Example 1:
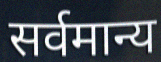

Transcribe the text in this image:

सर्वमान्य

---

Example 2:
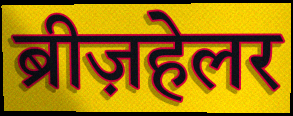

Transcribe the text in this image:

ब्रीज़हेलर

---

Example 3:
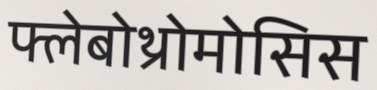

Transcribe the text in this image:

फ्लेबोथ्रोमोसिस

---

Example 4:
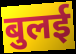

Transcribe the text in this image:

बुलई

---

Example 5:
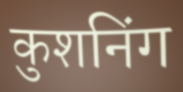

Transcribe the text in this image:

कुशनिंग